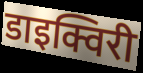
डाइक्विरी